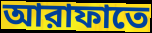
আরাফাতে